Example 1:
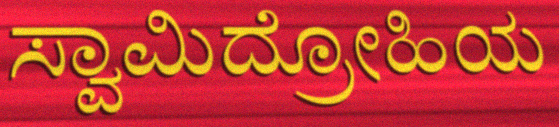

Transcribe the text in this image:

ಸ್ವಾಮಿದ್ರೋಹಿಯ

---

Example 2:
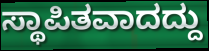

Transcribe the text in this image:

ಸ್ಥಾಪಿತವಾದದ್ದು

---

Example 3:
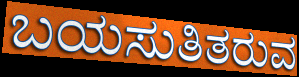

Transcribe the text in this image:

ಬಯಸುತಿತರುವ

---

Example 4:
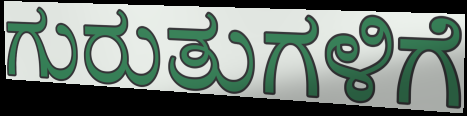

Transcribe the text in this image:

ಗುರುತುಗಳಿಗೆ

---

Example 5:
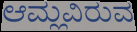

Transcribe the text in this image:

ಆಮ್ಲವಿರುವ